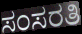
ಸಂಸರತಿ